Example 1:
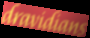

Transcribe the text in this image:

dravidians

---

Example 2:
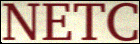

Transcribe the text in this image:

NETC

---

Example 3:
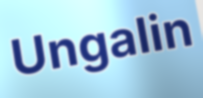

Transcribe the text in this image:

Ungalin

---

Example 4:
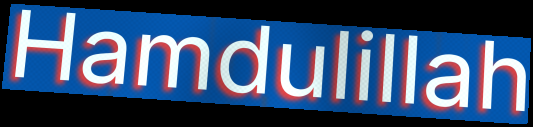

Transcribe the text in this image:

Hamdulillah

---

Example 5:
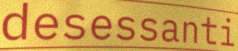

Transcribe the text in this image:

desessanti